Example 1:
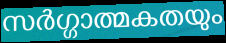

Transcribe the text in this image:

സർഗ്ഗാത്മകതയും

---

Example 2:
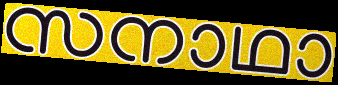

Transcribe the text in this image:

സനാഥാ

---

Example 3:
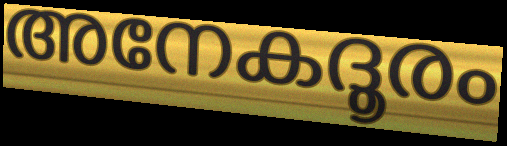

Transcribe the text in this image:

അനേകദൂരം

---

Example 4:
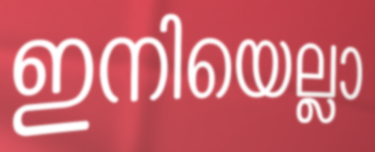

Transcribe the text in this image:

ഇനിയെല്ലാ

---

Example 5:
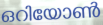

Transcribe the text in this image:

ഒറിയോൺ